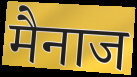
मैनाज